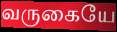
வருகையே